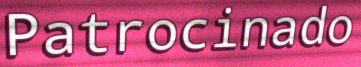
Patrocinado